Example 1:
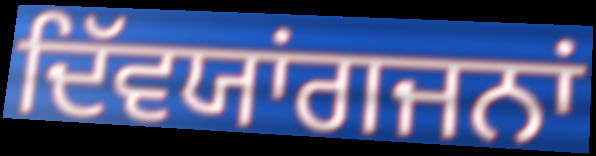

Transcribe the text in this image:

ਦਿੱਵਯਾਂਗਜਨਾਂ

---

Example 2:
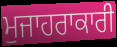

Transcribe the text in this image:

ਮੁਜਾਹਰਾਕਾਰੀ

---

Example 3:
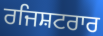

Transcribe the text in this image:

ਰਜਿਸ਼ਟਰਾਰ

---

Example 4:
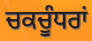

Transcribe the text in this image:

ਚਕਚੂੰਧਰਾਂ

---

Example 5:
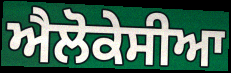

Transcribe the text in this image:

ਐਲੋਕੇਸੀਆ